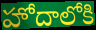
హోదాలోకి